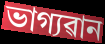
ভাগ্যৱান